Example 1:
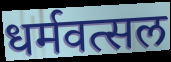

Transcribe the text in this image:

धर्मवत्सल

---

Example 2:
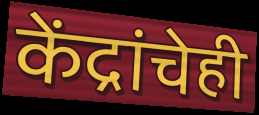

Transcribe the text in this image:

केंद्रांचेही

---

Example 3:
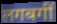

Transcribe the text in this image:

लगबगीं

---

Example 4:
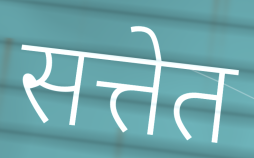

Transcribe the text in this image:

सत्तेत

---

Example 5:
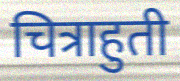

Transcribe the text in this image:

चित्राहुती